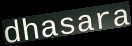
dhasara